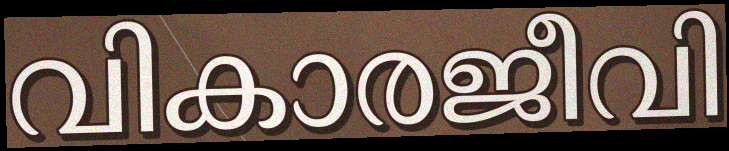
വികാരജീവി